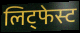
लिट्फेस्ट